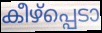
കീഴ്പ്പെടാ